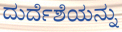
ದುರ್ದೆಶೆಯನ್ನು